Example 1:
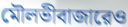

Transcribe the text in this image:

মৌলভীবাজারেও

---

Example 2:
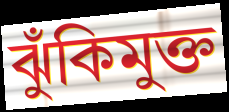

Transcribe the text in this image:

ঝুঁকিমুক্ত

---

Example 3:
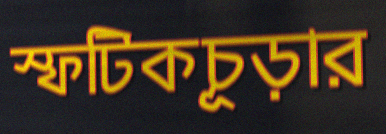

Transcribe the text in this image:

স্ফটিকচূড়ার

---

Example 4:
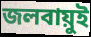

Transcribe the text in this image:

জলবায়ুই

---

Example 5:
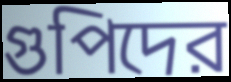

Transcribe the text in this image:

গুপিদের